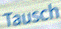
Tausch